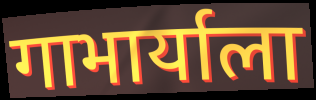
गाभार्याला